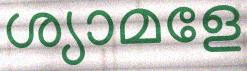
ശ്യാമളേ